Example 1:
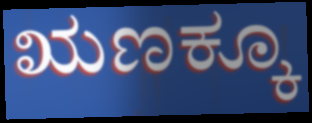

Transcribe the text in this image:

ಋಣಕ್ಕೂ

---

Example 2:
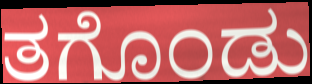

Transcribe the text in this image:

ತಗೊಂಡು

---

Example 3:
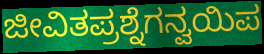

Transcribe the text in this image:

ಜೀವಿತಪ್ರಶ್ನೆಗನ್ವಯಿಪ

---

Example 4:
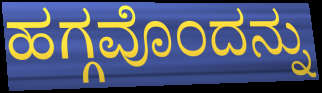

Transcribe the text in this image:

ಹಗ್ಗವೊಂದನ್ನು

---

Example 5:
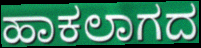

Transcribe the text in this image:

ಹಾಕಲಾಗದ